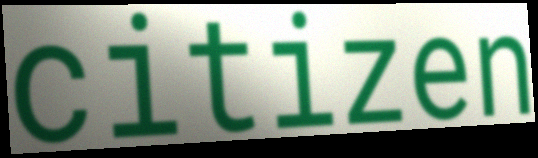
citizen